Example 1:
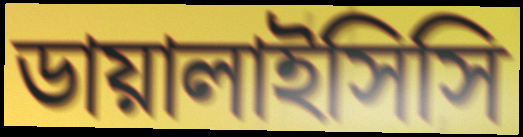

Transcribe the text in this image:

ডায়ালাইসিসি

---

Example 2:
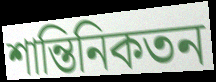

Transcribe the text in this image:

শান্তিনিকতন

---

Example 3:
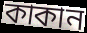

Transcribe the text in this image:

কাকান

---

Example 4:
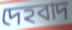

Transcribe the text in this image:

দেহবাদ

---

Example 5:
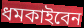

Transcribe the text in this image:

ধমকাইবেন